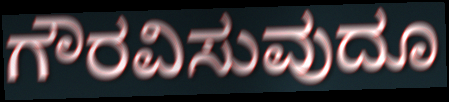
ಗೌರವಿಸುವುದೂ